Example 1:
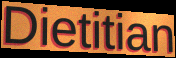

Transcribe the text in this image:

Dietitian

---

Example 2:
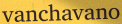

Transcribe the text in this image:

vanchavano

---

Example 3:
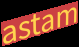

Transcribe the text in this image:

astam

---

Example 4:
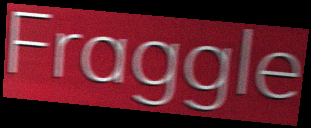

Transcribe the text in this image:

Fraggle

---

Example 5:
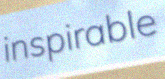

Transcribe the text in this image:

inspirable